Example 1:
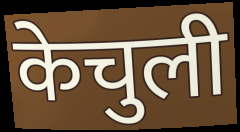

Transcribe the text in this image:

केचुली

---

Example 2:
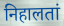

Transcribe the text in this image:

निहालतां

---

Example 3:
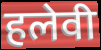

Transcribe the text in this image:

हलेवी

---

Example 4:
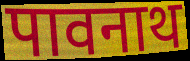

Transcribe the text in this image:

पावनाथ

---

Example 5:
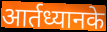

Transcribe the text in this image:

आर्तध्यानके